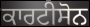
ਕਾਰਟੀਸੋਨ